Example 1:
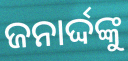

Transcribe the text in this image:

ଜନାର୍ଦ୍ଦଙ୍କୁ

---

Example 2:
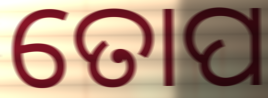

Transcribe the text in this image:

ତୋପ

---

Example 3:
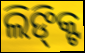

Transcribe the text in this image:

ଲିଙ୍କ୍ଟି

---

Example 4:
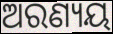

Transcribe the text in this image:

ଅରଣ୍ୟୟ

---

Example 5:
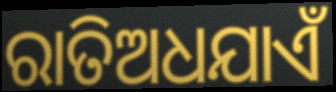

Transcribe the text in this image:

ରାତିଅଧଯାଏଁ